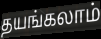
தயங்கலாம்